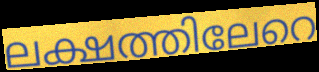
ലക്ഷത്തിലേറെ